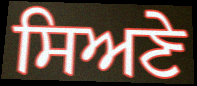
ਸਿਅਣੇ